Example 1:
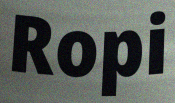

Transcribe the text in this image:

Ropi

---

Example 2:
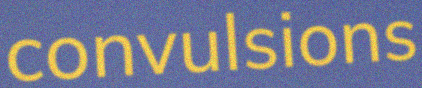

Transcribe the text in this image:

convulsions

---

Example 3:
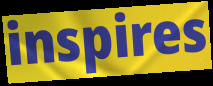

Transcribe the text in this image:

inspires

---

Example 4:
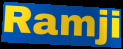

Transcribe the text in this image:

Ramji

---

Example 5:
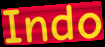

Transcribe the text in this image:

Indo